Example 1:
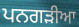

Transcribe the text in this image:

ਪਨਗੜੀਆ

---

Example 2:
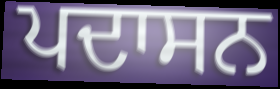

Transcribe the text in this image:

ਪਦਾਸਨ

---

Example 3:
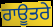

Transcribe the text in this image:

ਰਾਊਤਰੇ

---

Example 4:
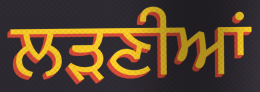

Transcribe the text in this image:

ਲੜਣੀਆਂ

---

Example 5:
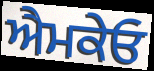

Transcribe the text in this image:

ਐਮਕੇਓ